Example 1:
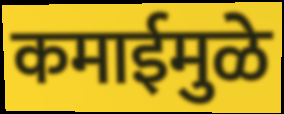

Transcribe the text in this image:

कमाईमुळे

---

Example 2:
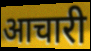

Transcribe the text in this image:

आचारी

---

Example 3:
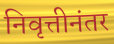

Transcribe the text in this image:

निवृत्तीनंतर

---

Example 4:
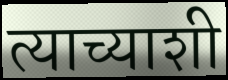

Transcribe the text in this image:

त्याच्याशी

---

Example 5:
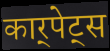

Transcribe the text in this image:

कार्पेट्स